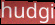
hudgi